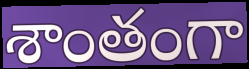
శాంతంగా